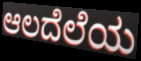
ಆಲದೆಲೆಯ